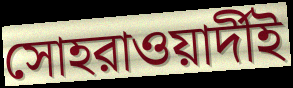
সোহরাওয়ার্দীই